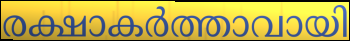
രക്ഷാകർത്താവായി